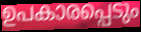
ഉപകാരപ്പെടും